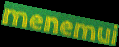
menemui